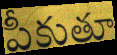
పీకుతూ